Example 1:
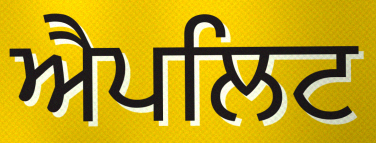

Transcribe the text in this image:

ਐਪਲਿਟ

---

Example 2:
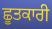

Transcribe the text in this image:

ਛੂਤਕਾਰੀ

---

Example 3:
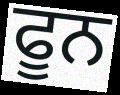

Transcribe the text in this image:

ਫੂਨ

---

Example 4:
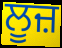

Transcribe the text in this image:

ਲੂਜ਼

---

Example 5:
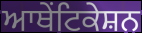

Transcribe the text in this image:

ਆਥੇਂਟਿਕੇਸ਼ਨ